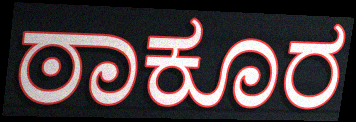
ಠಾಕೂರ